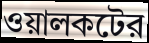
ওয়ালকটের